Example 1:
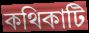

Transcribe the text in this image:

কথিকাটি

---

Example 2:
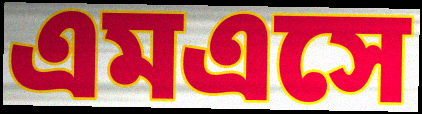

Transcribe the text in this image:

এমএসে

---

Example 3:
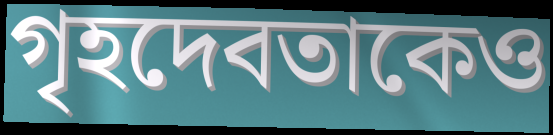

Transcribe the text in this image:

গৃহদেবতাকেও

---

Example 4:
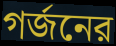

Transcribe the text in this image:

গর্জনের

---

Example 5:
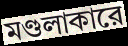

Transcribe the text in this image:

মণ্ডলাকারে